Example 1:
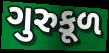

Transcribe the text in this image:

ગુરુકૂળ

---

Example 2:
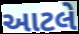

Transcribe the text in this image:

આટલે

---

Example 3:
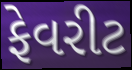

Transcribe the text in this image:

ફેવરીટ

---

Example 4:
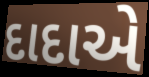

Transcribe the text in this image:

દાદાએ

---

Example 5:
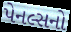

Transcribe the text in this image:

પેનલ્સનો